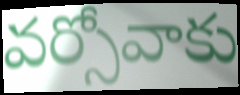
వర్సోవాకు